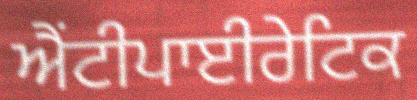
ਐਂਟੀਪਾਈਰੇਟਿਕ